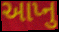
આપ્નુ